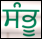
ਸੰਭੂ